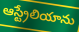
ఆస్ట్రేలియాను